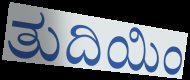
ತುದಿಯಿಂ